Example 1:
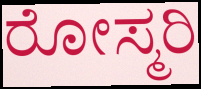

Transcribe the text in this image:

ರೋಸ್ಮರಿ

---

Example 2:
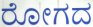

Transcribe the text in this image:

ರೋಗದ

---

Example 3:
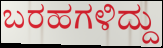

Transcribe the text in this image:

ಬರಹಗಳಿದ್ದು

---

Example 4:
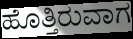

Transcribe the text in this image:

ಹೊತ್ತಿರುವಾಗ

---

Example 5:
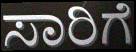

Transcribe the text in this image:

ಸಾರಿಗೆ